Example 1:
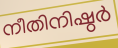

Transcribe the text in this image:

നീതിനിഷ്ഠർ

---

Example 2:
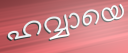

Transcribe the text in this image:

ഹവ്വായെ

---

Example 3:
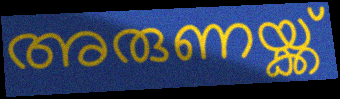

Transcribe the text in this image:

അരുണയ്ക്ക്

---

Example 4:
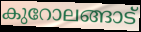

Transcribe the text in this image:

കുറോലങ്ങാട്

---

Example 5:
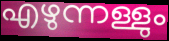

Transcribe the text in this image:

എഴുന്നള്ളും